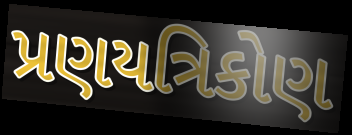
પ્રણયત્રિકોણ